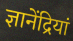
ज्ञानेंद्रियां